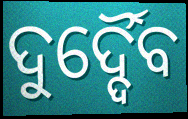
ଦୁର୍ଦ୍ଦୈବ